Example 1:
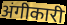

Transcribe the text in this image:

अंगीकारी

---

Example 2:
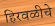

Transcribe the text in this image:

हिरवळीचे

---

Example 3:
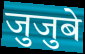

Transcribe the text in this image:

जुजुबे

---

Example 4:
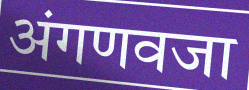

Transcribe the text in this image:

अंगणवजा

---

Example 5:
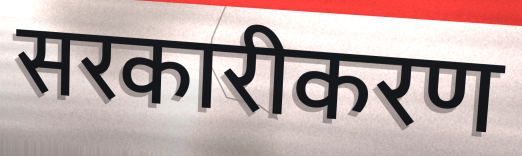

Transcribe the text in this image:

सरकारीकरण